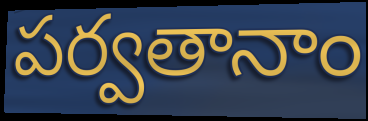
పర్వతానాం